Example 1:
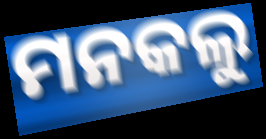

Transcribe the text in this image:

ମନକଲୁ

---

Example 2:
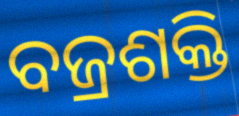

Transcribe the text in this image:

ବଜ୍ରଶକ୍ତି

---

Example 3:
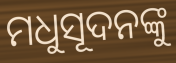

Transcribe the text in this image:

ମଧୁସୂଦନଙ୍କୁ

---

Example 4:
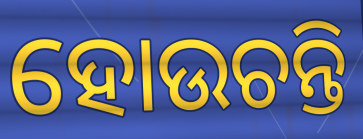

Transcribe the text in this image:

ହୋଉଚନ୍ତି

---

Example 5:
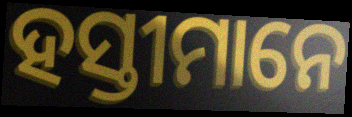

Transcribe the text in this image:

ହସ୍ତୀମାନେ